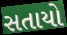
સતાયો